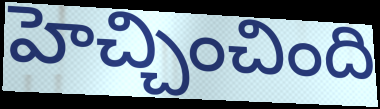
హెచ్చించింది